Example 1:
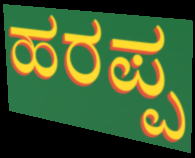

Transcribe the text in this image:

ಹರಪ್ಪ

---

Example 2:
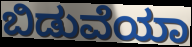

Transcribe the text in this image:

ಬಿಡುವೆಯಾ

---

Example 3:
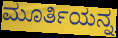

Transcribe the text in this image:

ಮೂರ್ತಿಯನ್ನ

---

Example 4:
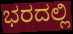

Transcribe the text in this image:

ಭರದಲ್ಲಿ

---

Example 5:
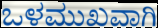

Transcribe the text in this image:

ಒಳಮುಖವಾಗಿ